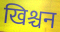
खिश्चन